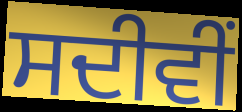
ਸਦੀਵੀਂ